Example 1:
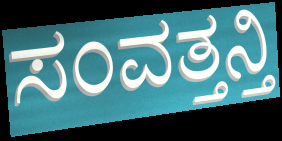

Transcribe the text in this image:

ಸಂವತ್ತನ್ತಿ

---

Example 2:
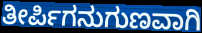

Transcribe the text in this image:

ತೀರ್ಪಿಗನುಗುಣವಾಗಿ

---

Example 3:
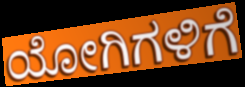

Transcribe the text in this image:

ಯೋಗಿಗಳಿಗೆ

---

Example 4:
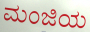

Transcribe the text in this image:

ಮಂಜಿಯ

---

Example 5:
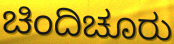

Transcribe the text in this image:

ಚಿಂದಿಚೂರು